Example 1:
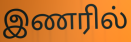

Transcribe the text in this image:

இணரில்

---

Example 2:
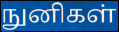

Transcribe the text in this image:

நுனிகள்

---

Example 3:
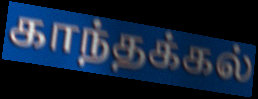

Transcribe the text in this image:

காந்தக்கல்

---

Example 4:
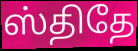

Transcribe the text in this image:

ஸ்திதே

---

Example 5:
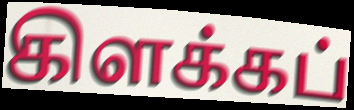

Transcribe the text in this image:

கிளக்கப்